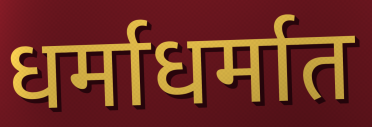
धर्माधर्मात